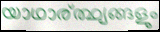
യാഥാര്ത്ഥ്യങ്ങളും